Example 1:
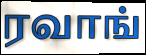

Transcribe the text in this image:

ரவாங்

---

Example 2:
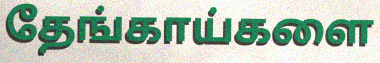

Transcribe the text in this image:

தேங்காய்களை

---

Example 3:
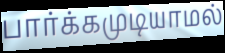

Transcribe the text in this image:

பார்க்கமுடியாமல்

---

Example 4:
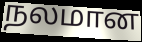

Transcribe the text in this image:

நலமான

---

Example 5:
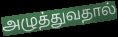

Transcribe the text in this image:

அழுத்துவதால்